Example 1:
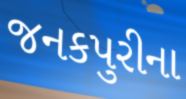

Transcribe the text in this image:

જનકપુરીના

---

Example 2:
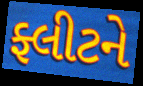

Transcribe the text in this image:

ફ્લીટને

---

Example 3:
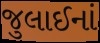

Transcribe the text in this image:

જુલાઈનાં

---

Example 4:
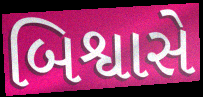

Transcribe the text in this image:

બિશ્વાસે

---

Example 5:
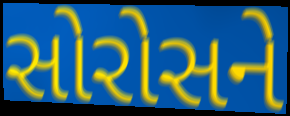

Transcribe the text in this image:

સોરોસને